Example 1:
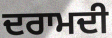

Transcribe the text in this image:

ਦਰਾਮਦੀ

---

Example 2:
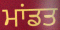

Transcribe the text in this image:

ਮਾਂਡਤ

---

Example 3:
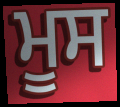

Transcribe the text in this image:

ਮੂਸ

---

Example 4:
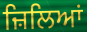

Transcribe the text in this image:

ਜ਼ਿਲਿਆਂ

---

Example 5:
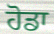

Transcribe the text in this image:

ਹੋਡਾ